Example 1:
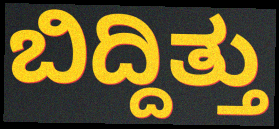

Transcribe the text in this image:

ಬಿದ್ದಿತ್ತು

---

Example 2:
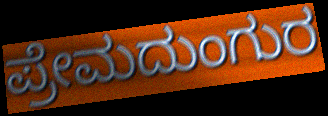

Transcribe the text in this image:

ಪ್ರೇಮದುಂಗುರ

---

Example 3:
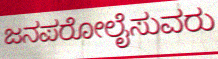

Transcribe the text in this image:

ಜನಪರೋಲೈಸುವರು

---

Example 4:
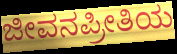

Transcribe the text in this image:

ಜೀವನಪ್ರೀತಿಯ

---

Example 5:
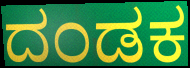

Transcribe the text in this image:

ದಂಡಕ